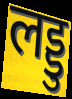
लड्डु